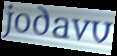
jodavu